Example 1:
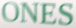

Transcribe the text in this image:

ONES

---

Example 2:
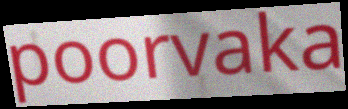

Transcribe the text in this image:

poorvaka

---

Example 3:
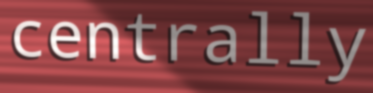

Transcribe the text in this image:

centrally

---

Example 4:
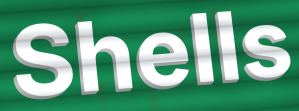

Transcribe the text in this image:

Shells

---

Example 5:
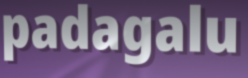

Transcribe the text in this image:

padagalu